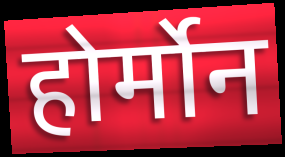
होर्मोन